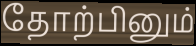
தோற்பினும்